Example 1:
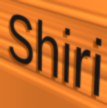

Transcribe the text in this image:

Shiri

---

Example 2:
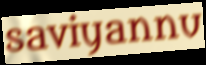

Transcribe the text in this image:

saviyannu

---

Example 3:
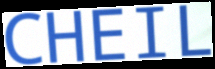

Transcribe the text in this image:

CHEIL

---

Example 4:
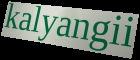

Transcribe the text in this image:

kalyangii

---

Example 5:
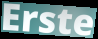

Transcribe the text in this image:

Erste